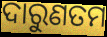
ଦାରୁଣତମ